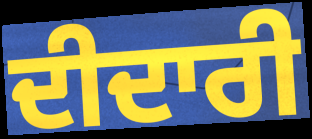
ਦੀਦਾਰੀ